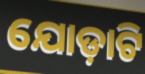
ଯୋଡ଼ାଟି